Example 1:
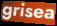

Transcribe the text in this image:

grisea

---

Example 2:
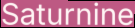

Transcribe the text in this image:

Saturnine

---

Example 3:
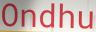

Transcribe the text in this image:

Ondhu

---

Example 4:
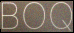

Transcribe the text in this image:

BOQ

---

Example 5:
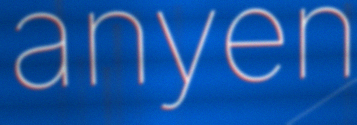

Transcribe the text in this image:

anyen